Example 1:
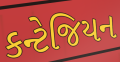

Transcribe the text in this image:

કન્ટેજિયન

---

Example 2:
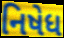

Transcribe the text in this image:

નિષેધ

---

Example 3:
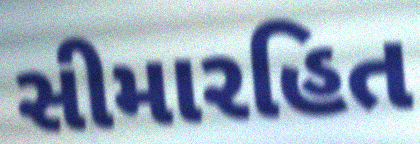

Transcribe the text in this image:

સીમારહિત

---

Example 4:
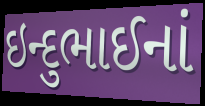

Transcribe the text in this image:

ઇન્દુભાઈનાં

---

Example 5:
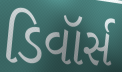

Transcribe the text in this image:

ડિવૉર્સ